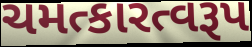
ચમત્કારત્વરૂપ